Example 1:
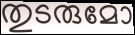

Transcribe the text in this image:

തുടരുമോ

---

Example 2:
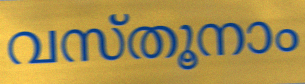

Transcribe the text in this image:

വസ്തൂനാം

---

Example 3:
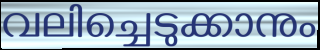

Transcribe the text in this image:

വലിച്ചെടുക്കാനും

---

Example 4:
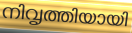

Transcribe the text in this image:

നിവൃത്തിയായി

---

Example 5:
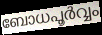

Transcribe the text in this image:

ബോധപൂർവ്വം